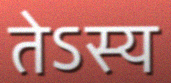
तेऽस्य